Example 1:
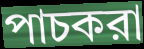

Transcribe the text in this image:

পাচকরা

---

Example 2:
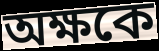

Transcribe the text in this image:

অক্ষকে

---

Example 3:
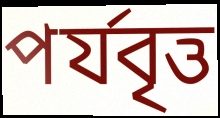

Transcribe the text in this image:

পর্যবৃত্ত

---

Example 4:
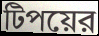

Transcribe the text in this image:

টিপয়ের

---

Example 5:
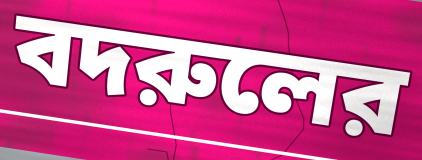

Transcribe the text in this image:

বদরুলের